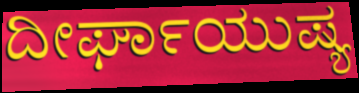
ದೀರ್ಘಾಯುಷ್ಯ